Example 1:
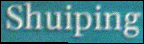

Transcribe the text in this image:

Shuiping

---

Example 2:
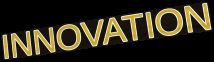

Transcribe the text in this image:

INNOVATION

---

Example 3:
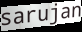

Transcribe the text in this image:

sarujan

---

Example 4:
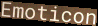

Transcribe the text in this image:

Emoticon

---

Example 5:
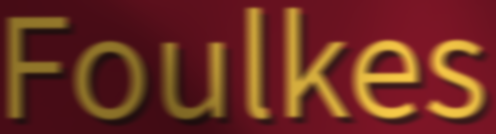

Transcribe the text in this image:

Foulkes